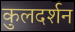
कुलदर्शन